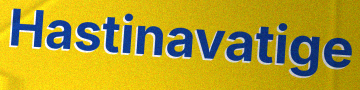
Hastinavatige